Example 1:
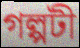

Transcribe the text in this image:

গল্পটী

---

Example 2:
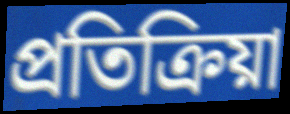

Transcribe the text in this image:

প্রতিক্রিয়া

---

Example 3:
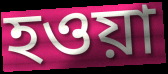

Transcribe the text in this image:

হওয়া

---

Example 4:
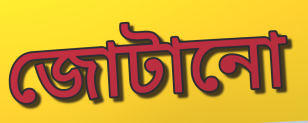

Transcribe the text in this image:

জোটানো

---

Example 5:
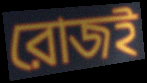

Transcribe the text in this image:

রোজই